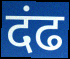
दंढ